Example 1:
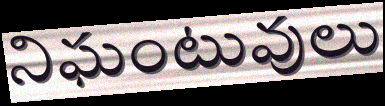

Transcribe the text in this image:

నిఘంటువులు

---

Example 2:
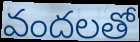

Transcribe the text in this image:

వందలతో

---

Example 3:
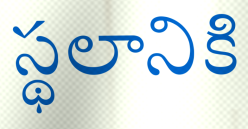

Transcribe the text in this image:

స్థలానికి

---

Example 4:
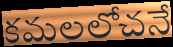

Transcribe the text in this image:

కమలలోచనే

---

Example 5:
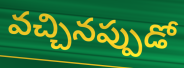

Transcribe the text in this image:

వచ్చినప్పుడో